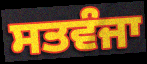
ਸਤਵੰਜਾ